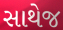
સાથેજ